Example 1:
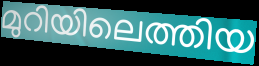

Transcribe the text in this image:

മുറിയിലെത്തിയ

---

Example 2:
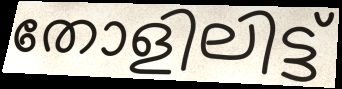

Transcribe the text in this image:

തോളിലിട്ട്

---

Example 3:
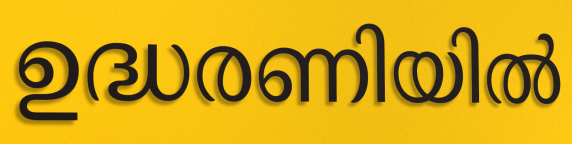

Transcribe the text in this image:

ഉദ്ധരണിയിൽ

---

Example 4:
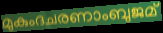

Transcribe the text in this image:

മുകുംദചരണാംബുജമ്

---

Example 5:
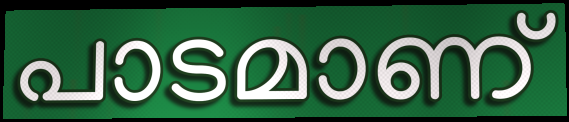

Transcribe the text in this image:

പാടമാണ്